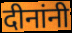
दीनांनी